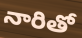
నారితో